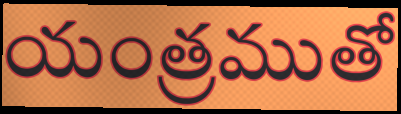
యంత్రముతో